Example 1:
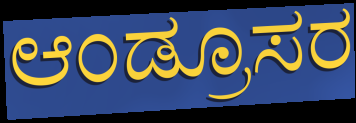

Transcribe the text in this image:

ಆಂಡ್ರೂಸರ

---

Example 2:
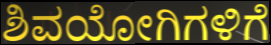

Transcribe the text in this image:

ಶಿವಯೋಗಿಗಳಿಗೆ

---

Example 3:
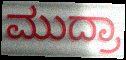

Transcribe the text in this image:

ಮುದ್ರಾ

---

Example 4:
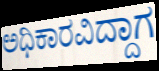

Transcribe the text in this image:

ಅಧಿಕಾರವಿದ್ದಾಗ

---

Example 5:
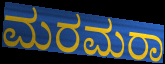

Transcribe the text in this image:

ಮರಮರಾ